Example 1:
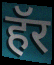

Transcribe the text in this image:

हॅर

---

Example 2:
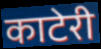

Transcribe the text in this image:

काटेरी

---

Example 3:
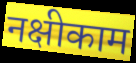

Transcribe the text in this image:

नक्षीकाम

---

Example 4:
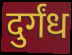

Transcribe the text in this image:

दुर्गंध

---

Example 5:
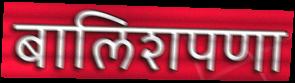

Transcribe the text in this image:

बालिशपणा